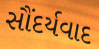
સૌંદર્યવાદ